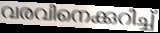
വരവിനെക്കുറിച്ച്